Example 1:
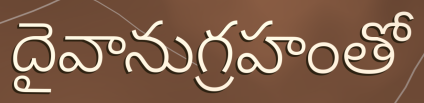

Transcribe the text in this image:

దైవానుగ్రహంతో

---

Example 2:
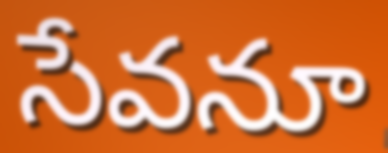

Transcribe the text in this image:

సేవనూ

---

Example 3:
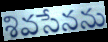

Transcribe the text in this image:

శివసేనను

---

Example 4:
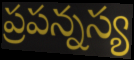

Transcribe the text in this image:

ప్రపన్నస్య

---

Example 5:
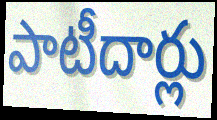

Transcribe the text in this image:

పాటీదార్లు